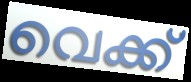
വെക്ക്